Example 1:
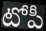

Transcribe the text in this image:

టోపీ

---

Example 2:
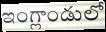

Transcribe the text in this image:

ఇంగ్లాండులో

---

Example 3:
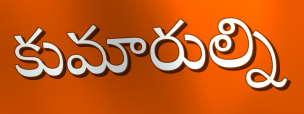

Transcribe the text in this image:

కుమారుల్ని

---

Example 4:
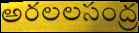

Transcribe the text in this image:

అరలలసంద్ర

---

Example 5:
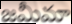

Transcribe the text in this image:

జమీమా